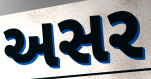
અસર